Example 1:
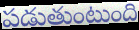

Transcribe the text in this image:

పడుతుంటుంది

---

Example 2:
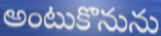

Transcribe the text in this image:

అంటుకొనును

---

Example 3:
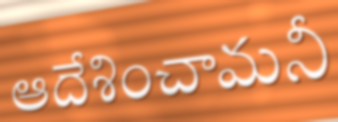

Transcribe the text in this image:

ఆదేశించామనీ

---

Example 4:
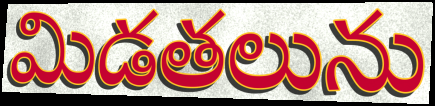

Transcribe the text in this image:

మిడతలును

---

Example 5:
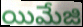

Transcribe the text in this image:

యిమేజి